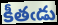
కీతఁడు